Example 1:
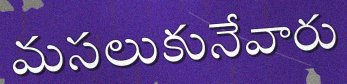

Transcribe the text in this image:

మసలుకునేవారు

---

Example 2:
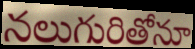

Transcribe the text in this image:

నలుగురితోనూ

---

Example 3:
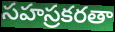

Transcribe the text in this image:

సహస్రకరతా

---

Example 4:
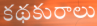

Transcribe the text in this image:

కథకురాలు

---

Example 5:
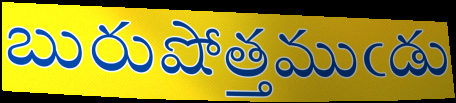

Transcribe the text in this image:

బురుషోత్తముఁడు